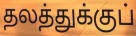
தலத்துக்குப்